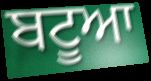
ਬਟੂਆ